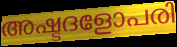
അഷ്ടദളോപരി